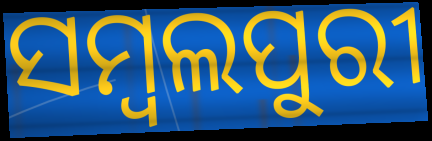
ସମ୍ବଲପୁରୀ